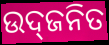
ଉଦ୍‌ଜନିତ